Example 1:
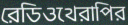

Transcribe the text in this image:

রেডিওথেরাপির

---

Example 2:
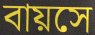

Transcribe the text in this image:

বায়সে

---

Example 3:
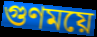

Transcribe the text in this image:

গুণময়ে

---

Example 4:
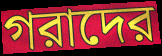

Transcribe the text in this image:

গরাদের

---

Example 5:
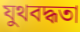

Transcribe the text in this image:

যুথবদ্ধতা